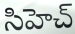
సిహెచ్